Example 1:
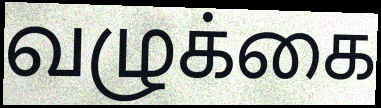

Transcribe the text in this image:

வழுக்கை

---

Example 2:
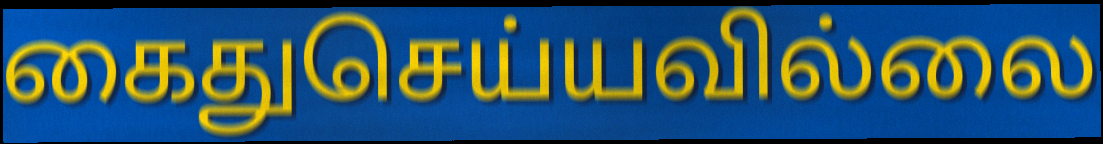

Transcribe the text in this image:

கைதுசெய்யவில்லை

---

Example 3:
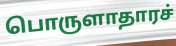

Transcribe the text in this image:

பொருளாதாரச்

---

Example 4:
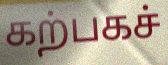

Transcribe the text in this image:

கற்பகச்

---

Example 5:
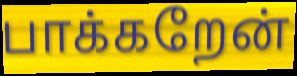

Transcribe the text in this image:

பாக்கறேன்